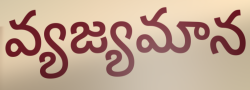
వ్యజ్యమాన